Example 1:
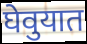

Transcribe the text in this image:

घेवुयात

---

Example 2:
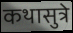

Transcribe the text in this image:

कथासुत्रे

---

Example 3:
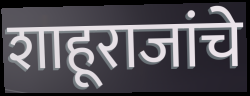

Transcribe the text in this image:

शाहूराजांचे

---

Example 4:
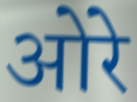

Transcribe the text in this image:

ओरे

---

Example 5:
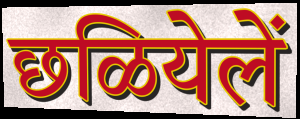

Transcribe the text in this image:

छळियेलें